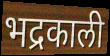
भद्रकाली